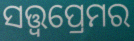
ସତ୍ତ୍ୱପ୍ରେମର